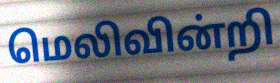
மெலிவின்றி